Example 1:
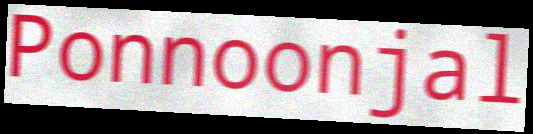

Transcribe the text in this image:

Ponnoonjal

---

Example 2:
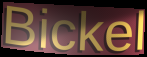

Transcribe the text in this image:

Bickel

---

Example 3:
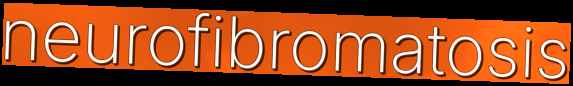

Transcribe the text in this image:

neurofibromatosis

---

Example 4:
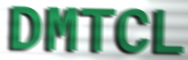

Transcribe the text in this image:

DMTCL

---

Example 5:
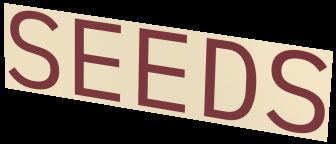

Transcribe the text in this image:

SEEDS